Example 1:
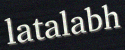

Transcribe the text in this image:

latalabh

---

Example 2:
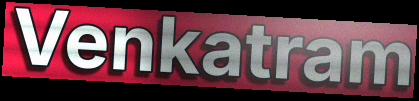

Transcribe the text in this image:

Venkatram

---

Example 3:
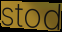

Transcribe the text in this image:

stod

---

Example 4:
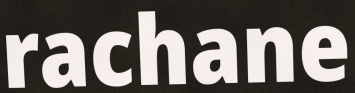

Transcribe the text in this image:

rachane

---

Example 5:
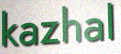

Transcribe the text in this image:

kazhal